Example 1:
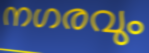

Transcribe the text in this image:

നഗരവും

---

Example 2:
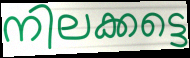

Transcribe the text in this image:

നിലക്കട്ടെ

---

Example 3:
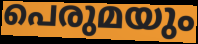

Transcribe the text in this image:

പെരുമയും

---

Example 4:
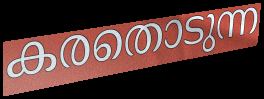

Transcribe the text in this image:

കരതൊടുന്ന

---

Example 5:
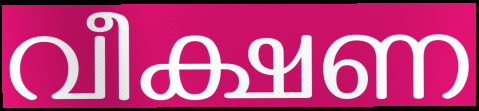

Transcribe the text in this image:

വീക്ഷണ